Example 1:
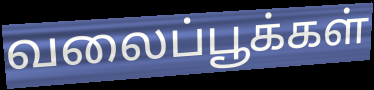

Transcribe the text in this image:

வலைப்பூக்கள்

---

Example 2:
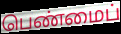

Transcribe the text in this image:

பெண்மைப்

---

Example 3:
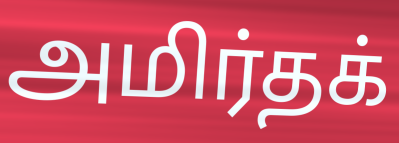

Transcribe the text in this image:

அமிர்தக்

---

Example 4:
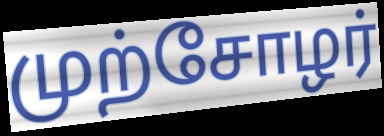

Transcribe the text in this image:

முற்சோழர்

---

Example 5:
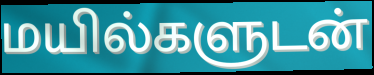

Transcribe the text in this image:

மயில்களுடன்